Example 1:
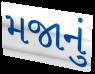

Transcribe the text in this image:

મજાનું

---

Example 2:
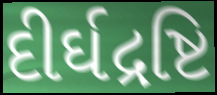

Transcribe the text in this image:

દીર્ઘદ્રષ્ટિ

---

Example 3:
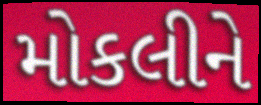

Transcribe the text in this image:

મોકલીને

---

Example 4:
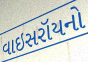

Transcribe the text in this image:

વાઇસરૉયનો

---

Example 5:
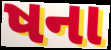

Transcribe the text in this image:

ષના